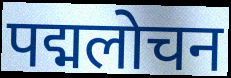
पद्मलोचन